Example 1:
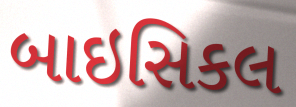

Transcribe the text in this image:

બાઇસિકલ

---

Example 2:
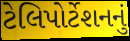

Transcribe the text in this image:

ટેલિપોર્ટેશનનું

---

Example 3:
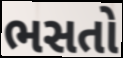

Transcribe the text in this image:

ભસતો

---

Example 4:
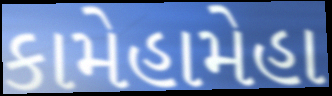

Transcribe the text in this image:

કામેહામેહા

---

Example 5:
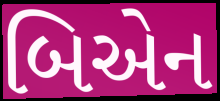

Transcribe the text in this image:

બિએન